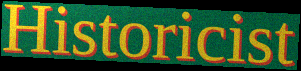
Historicist